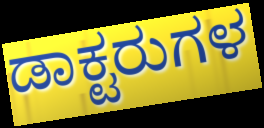
ಡಾಕ್ಟರುಗಳ